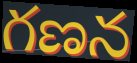
గణన